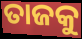
ତାଜକୁ